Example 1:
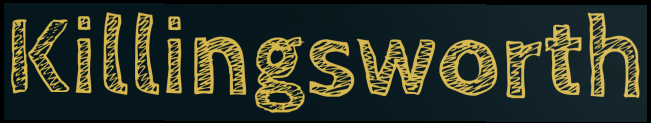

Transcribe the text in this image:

Killingsworth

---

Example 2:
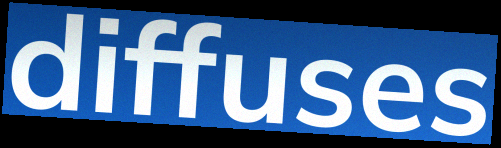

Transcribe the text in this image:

diffuses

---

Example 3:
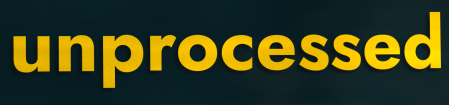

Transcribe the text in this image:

unprocessed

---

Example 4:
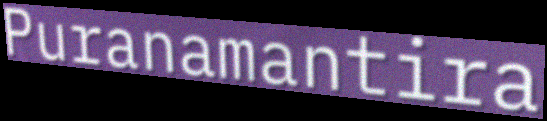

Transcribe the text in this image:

Puranamantira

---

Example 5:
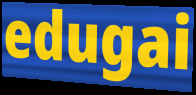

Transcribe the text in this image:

edugai